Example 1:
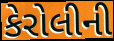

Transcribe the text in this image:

કેરોલીની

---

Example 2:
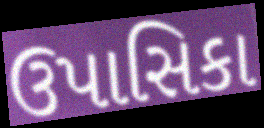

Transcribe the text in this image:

ઉપાસિકા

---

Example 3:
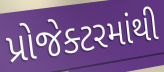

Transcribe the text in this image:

પ્રોજેક્ટરમાંથી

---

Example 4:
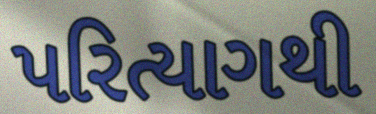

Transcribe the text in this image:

પરિત્યાગથી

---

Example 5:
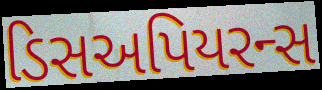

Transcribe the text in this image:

ડિસઅપિયરન્સ